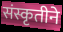
संस्कृतीने